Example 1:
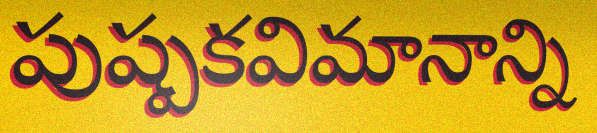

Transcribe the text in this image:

పుష్పకవిమానాన్ని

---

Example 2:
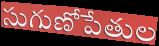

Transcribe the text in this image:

సుగుణోపేతుల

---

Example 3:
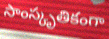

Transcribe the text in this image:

సాంస్కృతికంగా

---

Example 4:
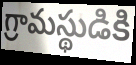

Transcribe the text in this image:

గ్రామస్థుడికి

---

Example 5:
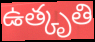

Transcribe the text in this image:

ఉత్కృతి